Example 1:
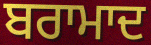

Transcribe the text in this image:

ਬਰਾਮਾਦ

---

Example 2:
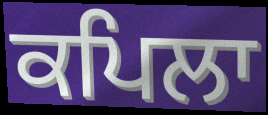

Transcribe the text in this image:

ਕਪਿਲਾ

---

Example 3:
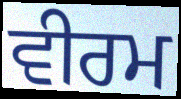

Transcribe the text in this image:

ਵੀਰਮ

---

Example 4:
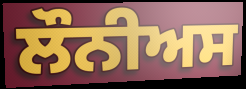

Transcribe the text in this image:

ਲੌਨੀਅਸ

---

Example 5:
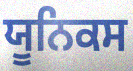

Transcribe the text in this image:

ਯੂਨਿਕਸ